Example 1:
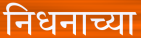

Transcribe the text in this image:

निधनाच्या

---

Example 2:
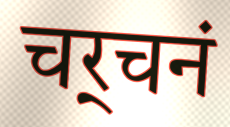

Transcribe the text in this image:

चर्चनं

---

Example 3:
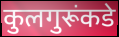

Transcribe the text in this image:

कुलगुरूंकडे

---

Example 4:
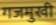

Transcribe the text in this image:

गजमुखी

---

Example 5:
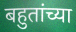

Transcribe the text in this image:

बहुतांच्या